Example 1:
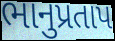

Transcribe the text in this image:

ભાનુપ્રતાપ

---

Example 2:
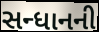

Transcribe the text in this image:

સન્ધાનની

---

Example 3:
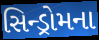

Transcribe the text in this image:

સિન્ડ્રોમના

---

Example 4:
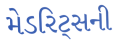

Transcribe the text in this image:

મેડરિટ્સની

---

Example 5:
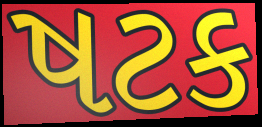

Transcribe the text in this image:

ષટક